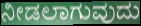
ನೀಡಲಾಗುವುದು